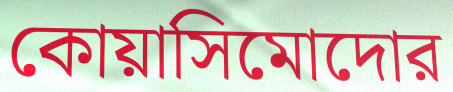
কোয়াসিমোদোর